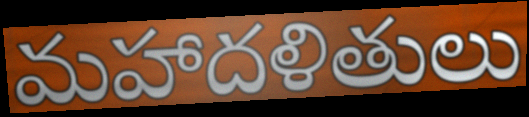
మహాదళితులు